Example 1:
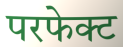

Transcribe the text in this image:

परफेक्ट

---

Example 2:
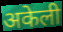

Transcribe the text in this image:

अकेली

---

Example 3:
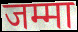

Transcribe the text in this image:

जम्मा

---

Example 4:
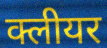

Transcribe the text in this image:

क्लीयर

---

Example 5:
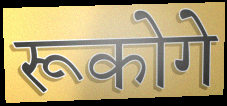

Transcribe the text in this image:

रूकोगे